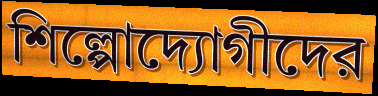
শিল্পোদ্যোগীদের